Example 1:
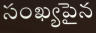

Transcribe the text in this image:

సంఖ్యపైన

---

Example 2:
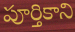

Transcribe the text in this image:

పూర్తికాని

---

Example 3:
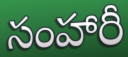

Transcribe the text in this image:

సంహారీ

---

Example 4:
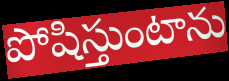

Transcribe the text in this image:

పోషిస్తుంటాను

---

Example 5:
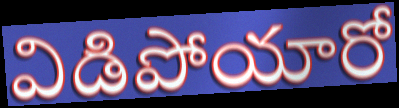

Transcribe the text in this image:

విడిపోయారో